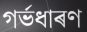
গৰ্ভধাৰণ